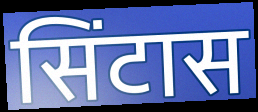
सिंटास